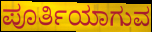
ಪೂರ್ತಿಯಾಗುವ